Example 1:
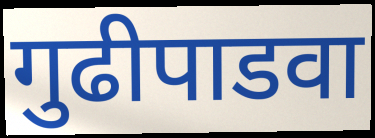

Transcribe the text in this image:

गुढीपाडवा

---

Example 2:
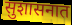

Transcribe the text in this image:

सुशासनात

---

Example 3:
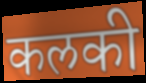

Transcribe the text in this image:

कलकी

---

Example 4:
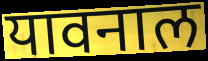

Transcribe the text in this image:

यावनाल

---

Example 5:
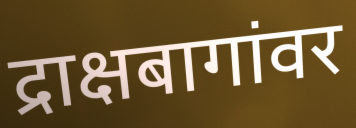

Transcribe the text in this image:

द्राक्षबागांवर